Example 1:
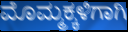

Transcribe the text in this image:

ಮೊಮ್ಮಕ್ಕಳಿಗಾಗಿ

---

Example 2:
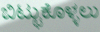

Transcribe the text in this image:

ಬಿಟ್ಟುಕೊಳ್ಳಲು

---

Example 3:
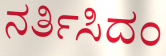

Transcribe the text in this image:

ನರ್ತಿಸಿದಂ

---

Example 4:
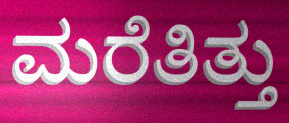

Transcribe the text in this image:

ಮರೆತಿತ್ತು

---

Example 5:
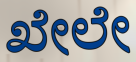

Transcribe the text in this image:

ಖೇಲೇ